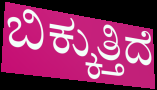
ಬಿಕ್ಕುತ್ತಿದೆ